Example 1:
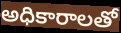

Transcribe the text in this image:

అధికారాలతో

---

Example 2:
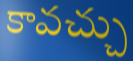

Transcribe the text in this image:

కావచ్చు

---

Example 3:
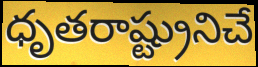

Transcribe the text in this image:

ధృతరాష్ట్రునిచే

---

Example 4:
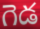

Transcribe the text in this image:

గెడ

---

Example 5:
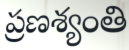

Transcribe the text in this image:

ప్రణశ్యంతి